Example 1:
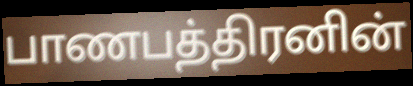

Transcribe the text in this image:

பாணபத்திரனின்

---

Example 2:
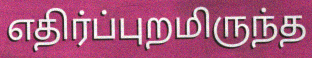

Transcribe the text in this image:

எதிர்ப்புறமிருந்த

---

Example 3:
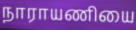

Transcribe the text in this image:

நாராயணியை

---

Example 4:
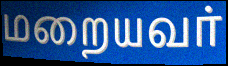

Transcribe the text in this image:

மறையவர்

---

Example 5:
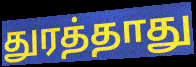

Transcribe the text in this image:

துரத்தாது